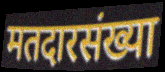
मतदारसंख्या